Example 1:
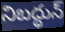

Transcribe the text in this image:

నిబద్ధున్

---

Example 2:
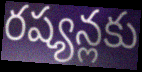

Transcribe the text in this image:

రష్యన్లకు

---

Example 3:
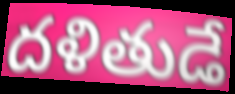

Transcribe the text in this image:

దళితుడే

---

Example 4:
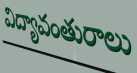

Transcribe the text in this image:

విద్యావంతురాలు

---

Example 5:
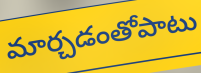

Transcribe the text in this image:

మార్చడంతోపాటు